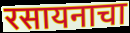
रसायनाचा